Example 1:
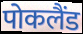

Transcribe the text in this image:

पोकलैंड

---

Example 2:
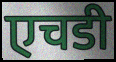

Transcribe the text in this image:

एचडी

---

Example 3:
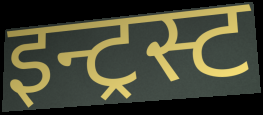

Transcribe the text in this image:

इन्ट्रस्ट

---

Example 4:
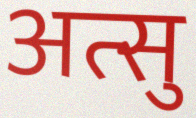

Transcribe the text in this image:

अत्सु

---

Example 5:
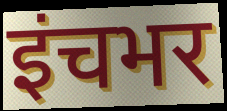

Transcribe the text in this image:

इंचभर